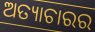
ଅତ୍ୟାଚାରର